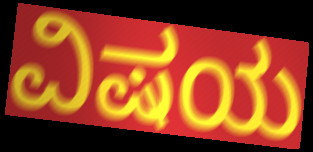
ವಿಷಯ